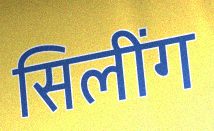
सिलींग